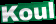
Koul